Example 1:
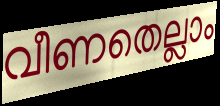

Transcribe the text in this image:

വീണതെല്ലാം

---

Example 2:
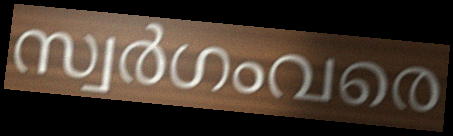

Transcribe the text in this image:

സ്വർഗംവരെ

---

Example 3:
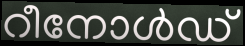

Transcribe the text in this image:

റീനോൾഡ്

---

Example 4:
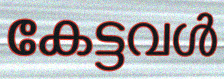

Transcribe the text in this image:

കേട്ടവൾ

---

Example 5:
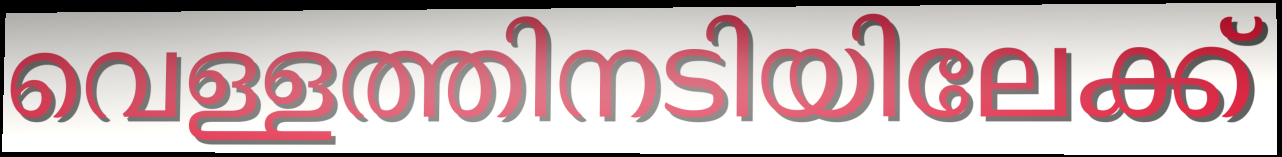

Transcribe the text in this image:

വെള്ളത്തിനടിയിലേക്ക്